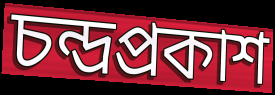
চন্দ্রপ্রকাশ